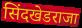
सिंदखेडराजा